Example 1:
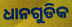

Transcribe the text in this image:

ଧାନଗୁଡିକ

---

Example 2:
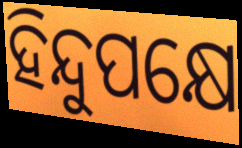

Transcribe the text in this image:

ହିନ୍ଦୁପକ୍ଷେ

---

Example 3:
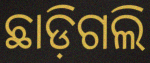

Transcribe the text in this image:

ଛାଡ଼ିଗଲି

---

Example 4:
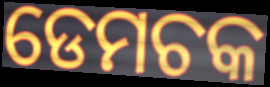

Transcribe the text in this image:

ଡେମଚକ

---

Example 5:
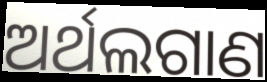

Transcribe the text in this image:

ଅର୍ଥଲଗାଣ